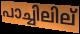
പാച്ചിലില്